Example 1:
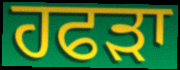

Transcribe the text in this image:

ਹਫੜਾ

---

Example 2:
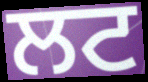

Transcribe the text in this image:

ਲਟ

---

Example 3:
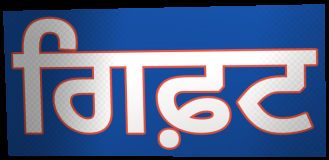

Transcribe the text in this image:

ਗਿਫ਼ਟ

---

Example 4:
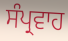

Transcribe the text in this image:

ਸੰਪ੍ਰਵਾਹ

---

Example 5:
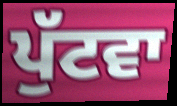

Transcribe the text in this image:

ਪੁੱਟਵਾ